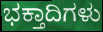
ಭಕ್ತಾದಿಗಳು